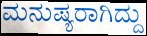
ಮನುಷ್ಯರಾಗಿದ್ದು